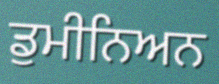
ਡੁਮੀਨਿਅਨ